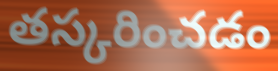
తస్కరించడం